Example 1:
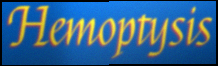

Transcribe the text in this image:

Hemoptysis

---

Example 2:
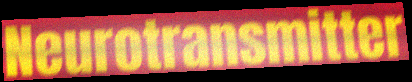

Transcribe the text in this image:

Neurotransmitter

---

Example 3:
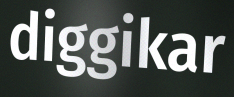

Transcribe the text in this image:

diggikar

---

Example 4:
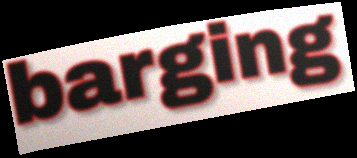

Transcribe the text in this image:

barging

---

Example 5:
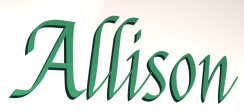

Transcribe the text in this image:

Allison